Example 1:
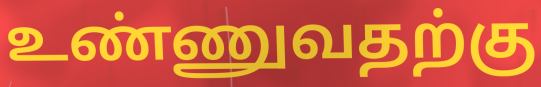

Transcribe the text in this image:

உண்ணுவதற்கு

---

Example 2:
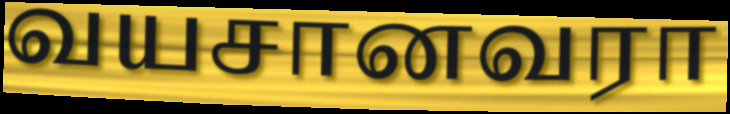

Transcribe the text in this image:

வயசானவரா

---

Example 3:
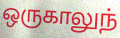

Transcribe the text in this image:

ஒருகாலுந்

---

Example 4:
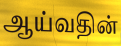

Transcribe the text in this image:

ஆய்வதின்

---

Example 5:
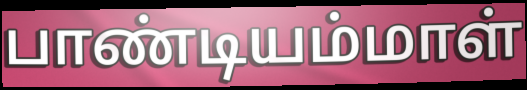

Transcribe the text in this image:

பாண்டியம்மாள்